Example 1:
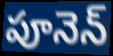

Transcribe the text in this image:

పూనెన్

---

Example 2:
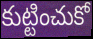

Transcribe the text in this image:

కుట్టించుకో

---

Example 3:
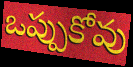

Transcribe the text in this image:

ఒప్పుకోవు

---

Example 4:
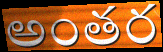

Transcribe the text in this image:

అంతర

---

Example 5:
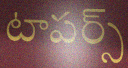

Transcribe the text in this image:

టాపర్స్